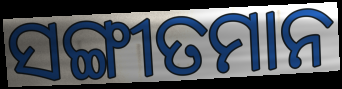
ସଙ୍ଗୀତମାନ